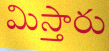
మిస్తారు